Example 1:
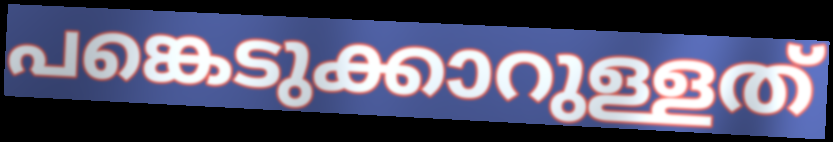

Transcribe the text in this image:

പങ്കെടുക്കാറുള്ളത്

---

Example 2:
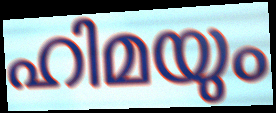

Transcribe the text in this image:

ഹിമയും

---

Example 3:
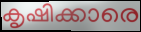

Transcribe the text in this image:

കൃഷിക്കാരെ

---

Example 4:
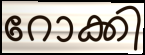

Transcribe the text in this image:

റോക്കി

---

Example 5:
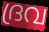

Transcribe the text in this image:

ദ്രവ